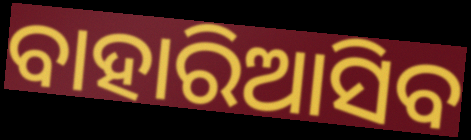
ବାହାରିଆସିବ